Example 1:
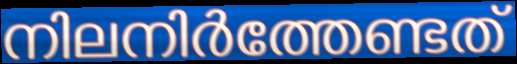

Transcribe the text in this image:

നിലനിർത്തേണ്ടത്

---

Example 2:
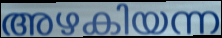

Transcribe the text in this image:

അഴകിയന്ന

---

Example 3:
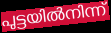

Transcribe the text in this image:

പുട്ടയിൽനിന്ന്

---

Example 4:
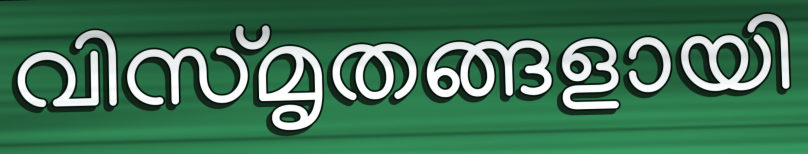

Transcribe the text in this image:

വിസ്മൃതങ്ങളായി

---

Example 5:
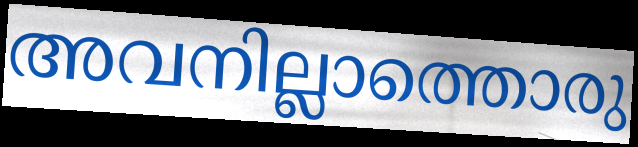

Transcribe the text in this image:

അവനില്ലാത്തൊരു